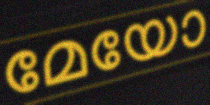
മേയോ